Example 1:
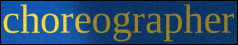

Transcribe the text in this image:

choreographer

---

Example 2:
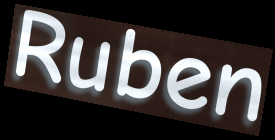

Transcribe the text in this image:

Ruben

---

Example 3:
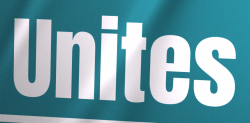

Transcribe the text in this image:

Unites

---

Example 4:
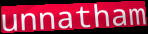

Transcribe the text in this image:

unnatham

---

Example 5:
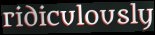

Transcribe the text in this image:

ridiculously